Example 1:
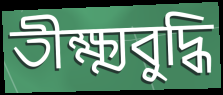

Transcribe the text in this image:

তীক্ষ্মবুদ্ধি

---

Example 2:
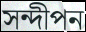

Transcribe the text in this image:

সন্দীপন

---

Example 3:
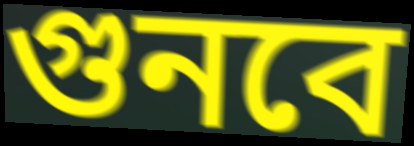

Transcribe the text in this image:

গুনবে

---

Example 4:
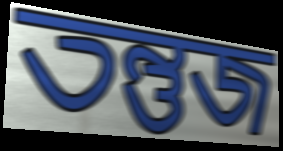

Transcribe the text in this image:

তন্তুজ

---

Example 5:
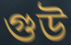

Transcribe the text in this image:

গুউ